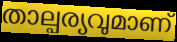
താല്പര്യവുമാണ്